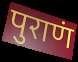
पुराणं